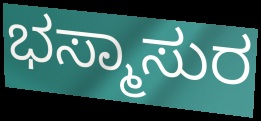
ಭಸ್ಮಾಸುರ